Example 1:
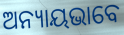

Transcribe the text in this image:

ଅନ୍ୟାୟଭାବେ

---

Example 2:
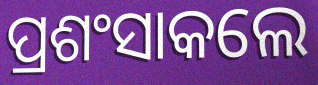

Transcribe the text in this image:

ପ୍ରଶଂସାକଲେ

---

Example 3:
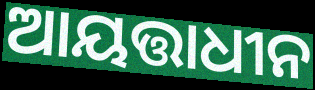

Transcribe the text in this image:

ଆୟତ୍ତାଧୀନ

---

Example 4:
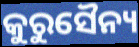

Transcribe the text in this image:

କୁରୁସୈନ୍ୟ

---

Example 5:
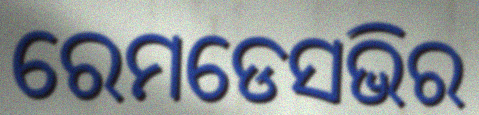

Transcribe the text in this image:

ରେମଡେସଭିର